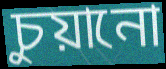
চুয়ানো